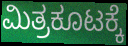
ಮಿತ್ರಕೂಟಕ್ಕೆ